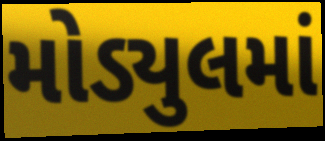
મોડ્યુલમાં